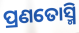
ପ୍ରଣତୋସ୍ମି